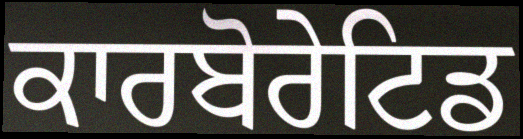
ਕਾਰਬੋਰੇਟਿਡ